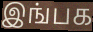
இங்பக